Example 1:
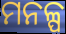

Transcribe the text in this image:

ମନଳ୍ପ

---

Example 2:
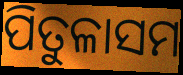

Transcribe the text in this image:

ପିତୁଳାସମ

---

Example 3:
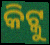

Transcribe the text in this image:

କିଟ୍କୁ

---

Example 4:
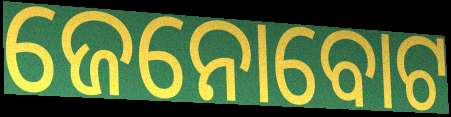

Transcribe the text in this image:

ଜେନୋବୋଟ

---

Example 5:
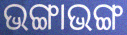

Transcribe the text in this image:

ଭଙ୍ଗାଭଙ୍ଗ